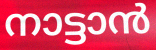
നാട്ടാൻ